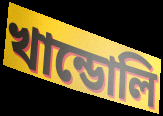
খান্ডোলি